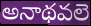
అనాథవలె